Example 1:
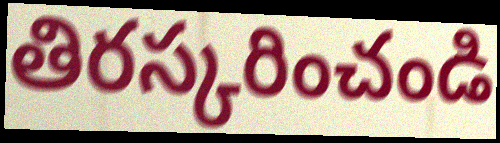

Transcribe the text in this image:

తిరస్కరించండి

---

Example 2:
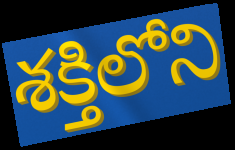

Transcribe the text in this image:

శక్తిలోని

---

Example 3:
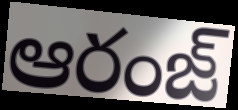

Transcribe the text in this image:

ఆరంజ్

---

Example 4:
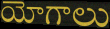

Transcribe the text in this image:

యోగాలు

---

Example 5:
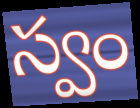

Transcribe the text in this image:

స్వం